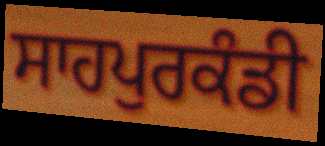
ਸਾਹਪੁਰਕੰਡੀ